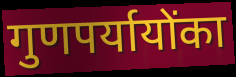
गुणपर्यायोंका